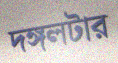
দঙ্গলটার